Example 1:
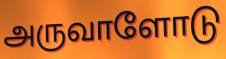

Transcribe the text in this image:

அருவாளோடு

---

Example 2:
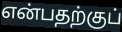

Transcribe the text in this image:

என்பதற்குப்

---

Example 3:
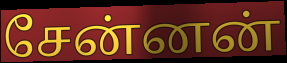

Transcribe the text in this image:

சேன்னன்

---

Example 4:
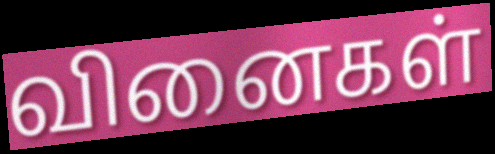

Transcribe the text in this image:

வினைகள்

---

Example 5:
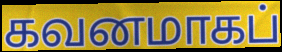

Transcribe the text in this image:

கவனமாகப்